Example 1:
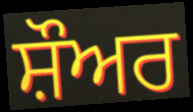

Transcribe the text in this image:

ਸ਼ੌਅਰ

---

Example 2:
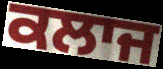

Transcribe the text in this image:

ਕਲਾਜ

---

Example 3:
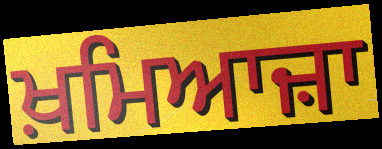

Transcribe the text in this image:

ਖ਼ਮਿਆਜ਼ਾ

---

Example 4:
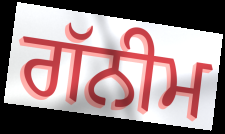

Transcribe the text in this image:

ਗੱਨੀਮ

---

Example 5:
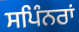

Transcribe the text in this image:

ਸਪਿੰਨਰਾਂ